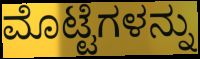
ಮೊಟ್ಟೆಗಳನ್ನು